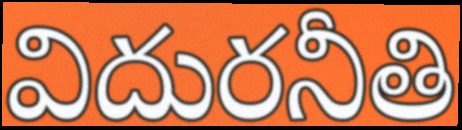
విదురనీతి